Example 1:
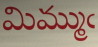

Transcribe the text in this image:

మిమ్ముఁ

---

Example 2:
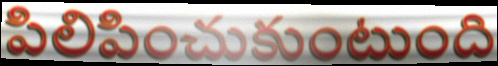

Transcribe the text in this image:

పిలిపించుకుంటుంది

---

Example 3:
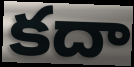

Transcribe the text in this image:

కదా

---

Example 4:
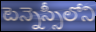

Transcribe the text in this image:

టెన్నెస్సీలోని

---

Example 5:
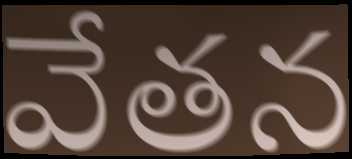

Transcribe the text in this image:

వేతన